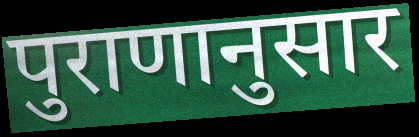
पुराणानुसार